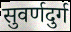
सुवर्णदुर्ग